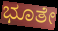
ಭೂತೇ